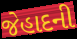
જેહાદની